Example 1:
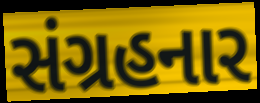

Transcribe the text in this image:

સંગ્રહનાર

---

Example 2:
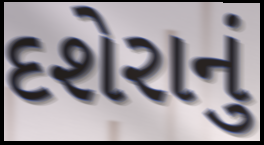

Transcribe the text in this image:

દશેરાનું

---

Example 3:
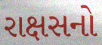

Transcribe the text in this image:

રાક્ષસનો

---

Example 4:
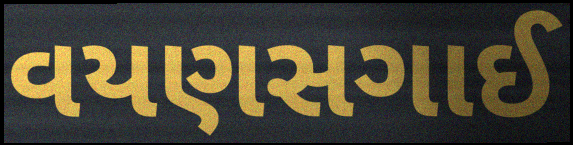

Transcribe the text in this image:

વયણસગાઈ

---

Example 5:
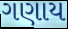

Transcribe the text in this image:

ગણાય